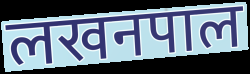
लखनपाल